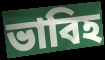
ভাবিহ